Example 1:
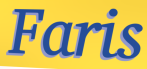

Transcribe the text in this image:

Faris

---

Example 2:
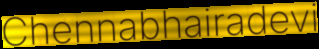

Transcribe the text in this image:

Chennabhairadevi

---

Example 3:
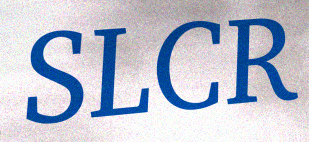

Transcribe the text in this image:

SLCR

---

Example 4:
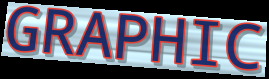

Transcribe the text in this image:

GRAPHIC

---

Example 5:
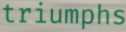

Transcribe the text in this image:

triumphs